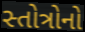
સ્તોત્રોનો